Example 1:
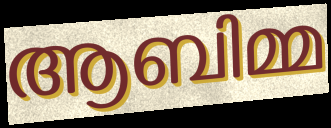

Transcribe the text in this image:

ആബിമ്മ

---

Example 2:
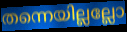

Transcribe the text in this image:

തന്നെയില്ലല്ലോ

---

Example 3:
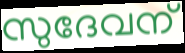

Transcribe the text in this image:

സുദേവന്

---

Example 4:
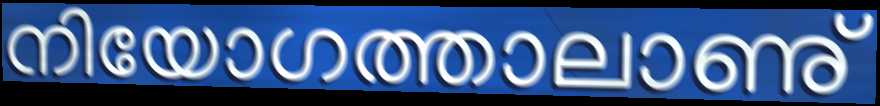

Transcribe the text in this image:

നിയോഗത്താലാണു്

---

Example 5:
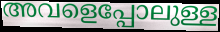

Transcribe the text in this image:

അവളെപ്പോലുള്ള